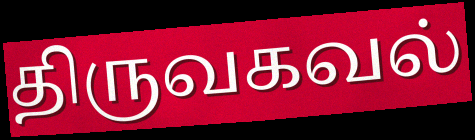
திருவகவல்